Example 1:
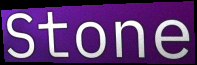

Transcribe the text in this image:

Stone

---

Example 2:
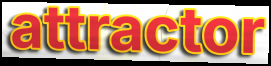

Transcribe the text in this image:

attractor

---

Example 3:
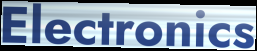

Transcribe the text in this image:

Electronics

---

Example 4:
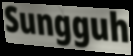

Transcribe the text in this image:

Sungguh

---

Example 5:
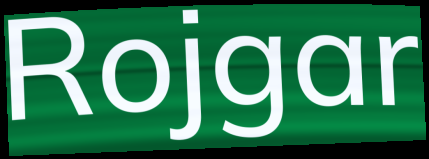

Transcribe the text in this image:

Rojgar